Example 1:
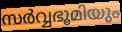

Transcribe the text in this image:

സർവ്വഭൂമിയും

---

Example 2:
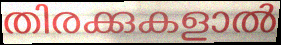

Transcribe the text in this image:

തിരക്കുകളാൽ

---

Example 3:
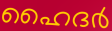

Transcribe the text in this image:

ഹൈദർ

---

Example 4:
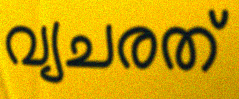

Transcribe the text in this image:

വ്യചരത്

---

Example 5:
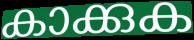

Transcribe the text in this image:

കാക്കുക